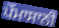
ਪੇੱਮਾਸਾਨੀ